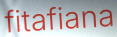
fitafiana